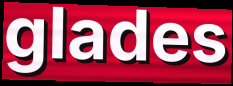
glades